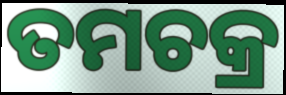
ତମଚକ୍ର